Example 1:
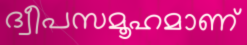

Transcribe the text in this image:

ദ്വീപസമൂഹമാണ്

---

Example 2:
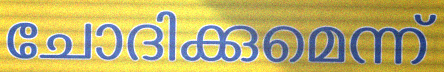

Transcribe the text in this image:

ചോദിക്കുമെന്ന്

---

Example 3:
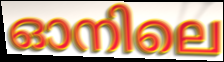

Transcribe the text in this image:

ഓനിലെ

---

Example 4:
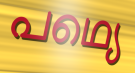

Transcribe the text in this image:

പഥ്യെ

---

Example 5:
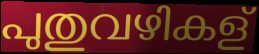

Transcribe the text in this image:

പുതുവഴികള്